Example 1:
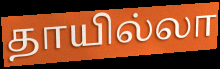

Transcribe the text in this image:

தாயில்லா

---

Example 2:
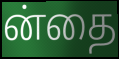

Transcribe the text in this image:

ன்தை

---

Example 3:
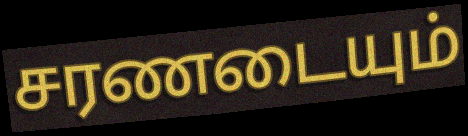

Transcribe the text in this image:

சரணடையும்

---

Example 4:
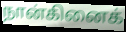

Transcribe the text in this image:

நான்கினைக்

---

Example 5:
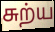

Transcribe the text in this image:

சுற்ய